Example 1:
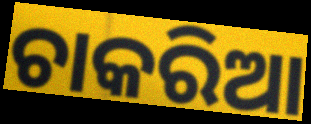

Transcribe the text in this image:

ଚାକରିଆ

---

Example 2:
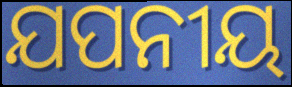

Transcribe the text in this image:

ଯପନୀୟ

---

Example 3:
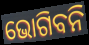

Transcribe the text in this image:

ଭୋଗିବନି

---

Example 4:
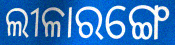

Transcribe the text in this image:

ଲୀଳାରଙ୍ଗେ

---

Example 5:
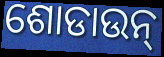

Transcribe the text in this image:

ଶୋଡାଉନ୍